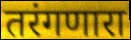
तरंगणारा